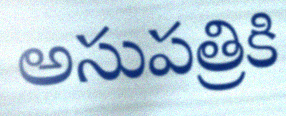
అసుపత్రికి